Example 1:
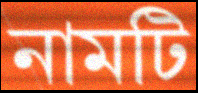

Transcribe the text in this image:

নামটি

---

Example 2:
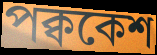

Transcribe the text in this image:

পক্বকেশ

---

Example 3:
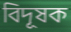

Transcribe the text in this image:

বিদূষক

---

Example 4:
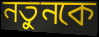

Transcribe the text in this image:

নতুনকে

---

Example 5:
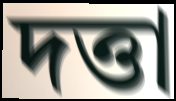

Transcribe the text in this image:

দত্তা